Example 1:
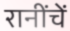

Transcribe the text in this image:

रानींचें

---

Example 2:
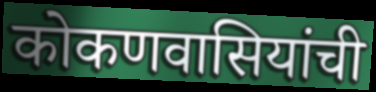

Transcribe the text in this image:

कोकणवासियांची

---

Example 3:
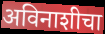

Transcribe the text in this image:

अविनाशीचा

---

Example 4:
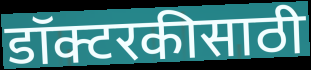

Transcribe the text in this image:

डॉक्टरकीसाठी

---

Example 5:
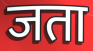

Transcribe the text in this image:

जता